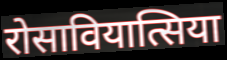
रोसावियात्सिया